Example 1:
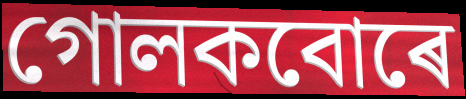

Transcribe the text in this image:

গোলকবোৰে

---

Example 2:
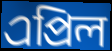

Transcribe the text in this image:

এপ্ৰিল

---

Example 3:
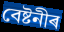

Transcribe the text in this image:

বেষ্টনীৰ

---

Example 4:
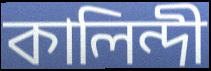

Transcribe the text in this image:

কালিন্দী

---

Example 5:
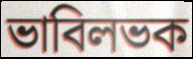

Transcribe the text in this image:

ভাবিলভক